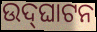
ଉଦ୍‌ଘାଟନ